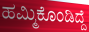
ಹಮ್ಮಿಕೊಂಡಿದ್ದೆ